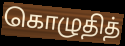
கொழுதித்